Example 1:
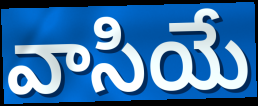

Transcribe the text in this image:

వాసియే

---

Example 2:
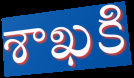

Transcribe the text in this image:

శాఖకి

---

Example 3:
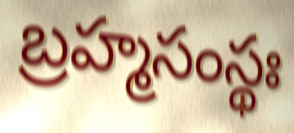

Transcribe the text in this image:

బ్రహ్మసంస్థః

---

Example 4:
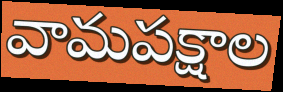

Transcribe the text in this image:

వామపక్షాల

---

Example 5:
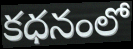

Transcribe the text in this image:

కధనంలో